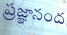
ప్రజ్ఞానంద